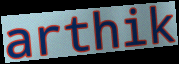
arthik